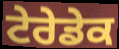
ਟੇਰੇਡੇਕ